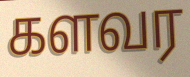
களவர